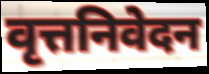
वृत्तनिवेदन